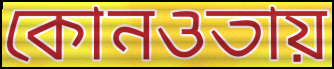
কোনওতায়